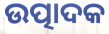
ଉତ୍ପାଦକ